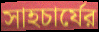
সাহচার্যের